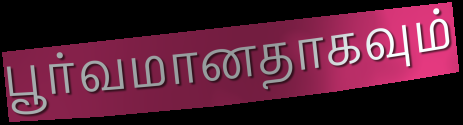
பூர்வமானதாகவும்